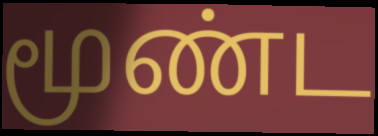
மூண்ட